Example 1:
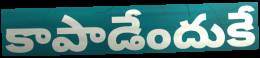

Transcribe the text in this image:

కాపాడేందుకే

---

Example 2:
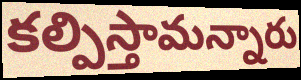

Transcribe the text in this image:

కల్పిస్తామన్నారు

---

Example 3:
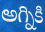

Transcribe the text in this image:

అగ్నికి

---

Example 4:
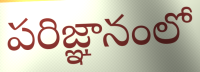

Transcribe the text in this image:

పరిజ్ఞానంలో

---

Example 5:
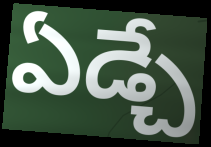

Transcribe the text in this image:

ఏడ్చే